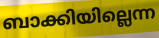
ബാക്കിയില്ലെന്ന